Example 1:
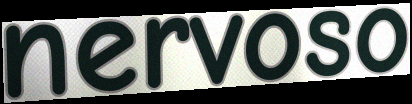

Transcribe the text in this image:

nervoso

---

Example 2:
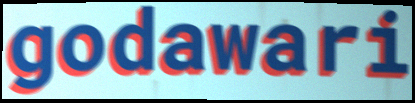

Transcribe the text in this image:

godawari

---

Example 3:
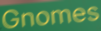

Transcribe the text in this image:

Gnomes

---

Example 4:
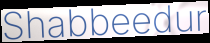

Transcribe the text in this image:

Shabbeedur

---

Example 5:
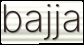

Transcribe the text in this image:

bajja